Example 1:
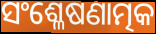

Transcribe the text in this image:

ସଂଶ୍ଳେଷଣାତ୍ମକ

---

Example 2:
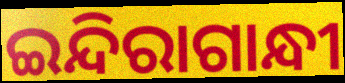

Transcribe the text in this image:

ଇନ୍ଦିରାଗାନ୍ଧୀ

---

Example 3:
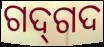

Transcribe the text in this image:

ଗଦ୍‌ଗଦ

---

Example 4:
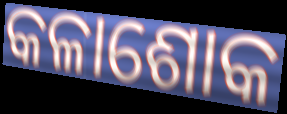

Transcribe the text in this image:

କଳାଶୋକ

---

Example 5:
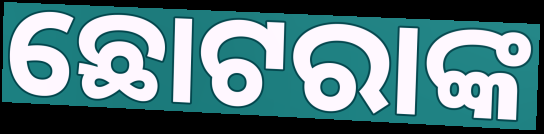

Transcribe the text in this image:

ଛୋଟରାଙ୍କ